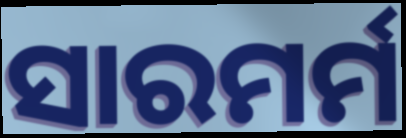
ସାରମର୍ମ